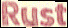
Rust